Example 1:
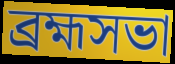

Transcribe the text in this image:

ব্রহ্মসভা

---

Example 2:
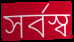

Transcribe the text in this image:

সর্বস্ব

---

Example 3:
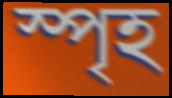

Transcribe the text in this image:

স্পৃহ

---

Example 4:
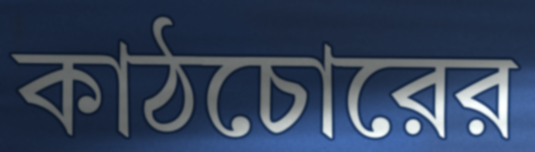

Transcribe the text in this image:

কাঠচোরের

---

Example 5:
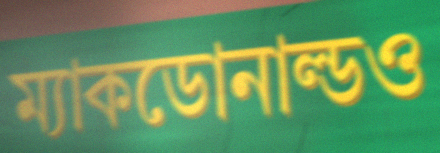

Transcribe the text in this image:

ম্যাকডোনাল্ডও